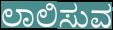
ಲಾಲಿಸುವ